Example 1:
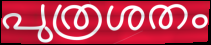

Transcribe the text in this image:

പുത്രശതം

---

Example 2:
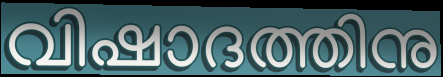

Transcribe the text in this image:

വിഷാദത്തിനു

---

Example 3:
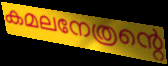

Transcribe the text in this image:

കമലനേത്രന്റെ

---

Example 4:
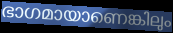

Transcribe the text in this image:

ഭാഗമായാണെങ്കിലും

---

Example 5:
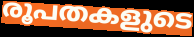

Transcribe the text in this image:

രൂപതകളുടെ